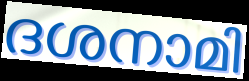
ദശനാമി